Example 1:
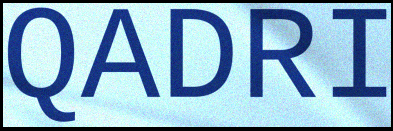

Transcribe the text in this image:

QADRI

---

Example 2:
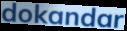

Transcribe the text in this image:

dokandar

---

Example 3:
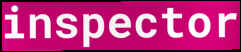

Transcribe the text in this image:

inspector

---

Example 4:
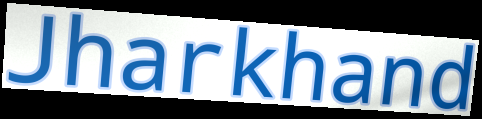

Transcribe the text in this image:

Jharkhand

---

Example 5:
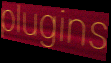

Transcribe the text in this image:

plugins